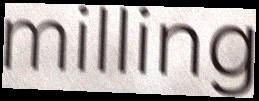
milling